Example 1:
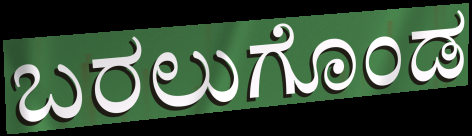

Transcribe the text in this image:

ಬರಲುಗೊಂಡ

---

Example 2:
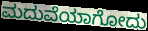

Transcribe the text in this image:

ಮದುವೆಯಾಗೋದು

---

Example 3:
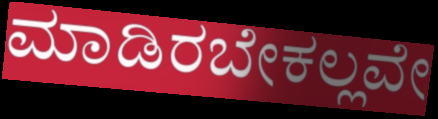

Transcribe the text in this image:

ಮಾಡಿರಬೇಕಲ್ಲವೇ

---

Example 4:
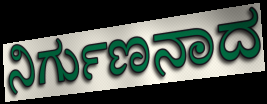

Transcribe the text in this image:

ನಿರ್ಗುಣನಾದ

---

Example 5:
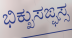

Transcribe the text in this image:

ಭಿಕ್ಖುಸಙ್ಘಸ್ಸ